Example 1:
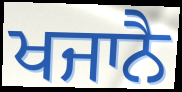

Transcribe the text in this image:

ਖਜਾਨੈ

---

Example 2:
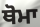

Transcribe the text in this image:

ਥੋਮਾ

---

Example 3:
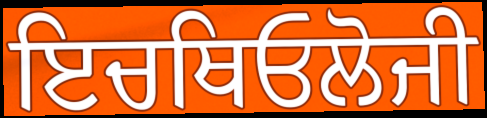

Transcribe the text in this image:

ਇਚਥਿਓਲੋਜੀ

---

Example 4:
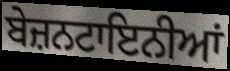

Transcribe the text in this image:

ਬੇਜ਼ਨਟਾਇਨੀਆਂ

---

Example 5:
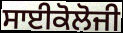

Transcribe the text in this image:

ਸਾਈਕੋਲੋਜੀ